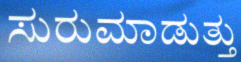
ಸುರುಮಾಡುತ್ತು